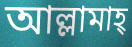
আল্লামাহ্